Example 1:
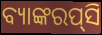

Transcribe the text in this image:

ବ୍ୟାଙ୍କରପ୍‌ସି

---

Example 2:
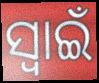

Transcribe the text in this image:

ସ୍ଵାଇଁ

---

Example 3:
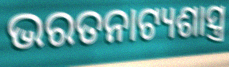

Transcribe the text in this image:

ଭରତନାଟ୍ୟଶାସ୍ତ୍ର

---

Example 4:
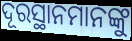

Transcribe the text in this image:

ଦୂରସ୍ଥାନମାନଙ୍କୁ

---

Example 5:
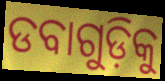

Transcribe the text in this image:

ଡବାଗୁଡ଼ିକୁ